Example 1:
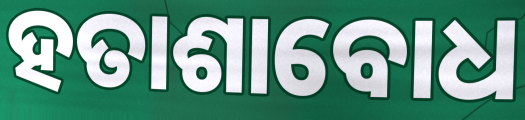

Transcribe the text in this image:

ହତାଶାବୋଧ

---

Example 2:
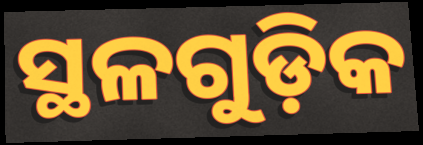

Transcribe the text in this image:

ସ୍ଥଳଗୁଡ଼ିକ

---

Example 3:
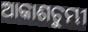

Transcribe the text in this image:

ଆକାଶଚୁମ୍ଭୀ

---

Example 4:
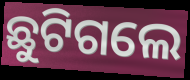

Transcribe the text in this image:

ଛୁଟିଗଲେ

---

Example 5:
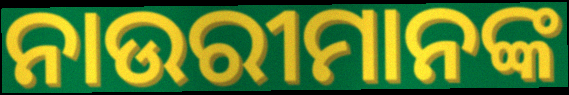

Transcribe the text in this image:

ନାଉରୀମାନଙ୍କ